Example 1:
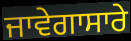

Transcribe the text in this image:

ਜਾਵੇਗਾਸਾਰੇ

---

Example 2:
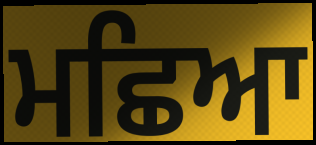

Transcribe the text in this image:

ਮਛਿਆ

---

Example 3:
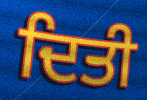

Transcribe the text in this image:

ਦਿਤੀ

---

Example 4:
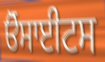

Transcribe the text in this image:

ਓੋਸਾਈਟਸ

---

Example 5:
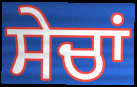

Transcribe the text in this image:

ਸੇਚਾਂ